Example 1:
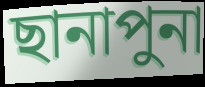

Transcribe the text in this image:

ছানাপুনা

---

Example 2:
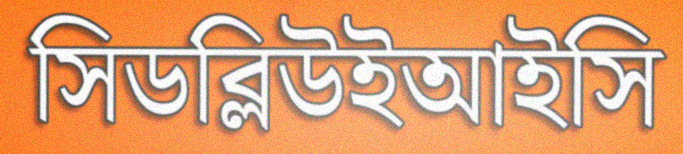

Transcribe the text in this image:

সিডব্লিউইআইসি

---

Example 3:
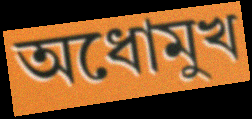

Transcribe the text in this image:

অধোমুখ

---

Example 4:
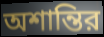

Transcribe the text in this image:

অশান্তির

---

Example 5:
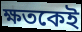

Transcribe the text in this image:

ক্ষতকেই